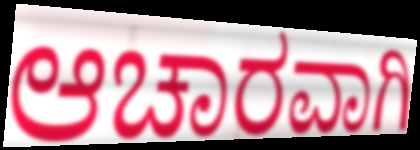
ಆಚಾರವಾಗಿ